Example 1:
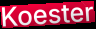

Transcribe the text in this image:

Koester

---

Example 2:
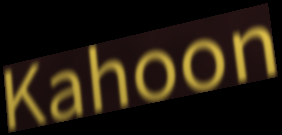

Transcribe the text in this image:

Kahoon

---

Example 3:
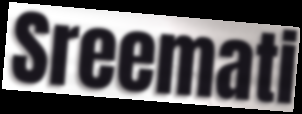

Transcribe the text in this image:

Sreemati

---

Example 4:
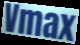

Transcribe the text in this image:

Vmax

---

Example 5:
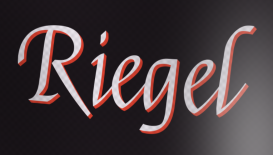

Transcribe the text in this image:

Riegel